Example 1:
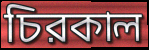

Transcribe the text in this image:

চিরকাল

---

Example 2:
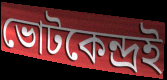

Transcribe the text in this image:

ভোটকেন্দ্রই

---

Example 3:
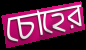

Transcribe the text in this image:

চোহের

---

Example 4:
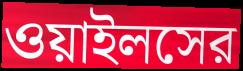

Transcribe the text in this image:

ওয়াইলসের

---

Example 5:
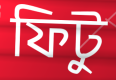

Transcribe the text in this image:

ফিটু